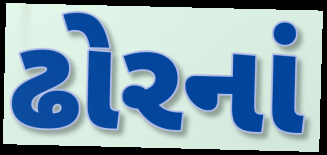
ઢોરનાં